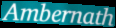
Ambernath